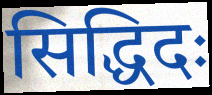
सिद्धिदः